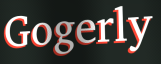
Gogerly